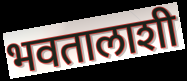
भवतालाशी